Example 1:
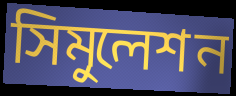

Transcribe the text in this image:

সিমুলেশন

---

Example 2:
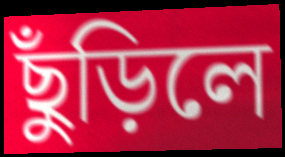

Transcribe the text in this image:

ছুঁড়িলে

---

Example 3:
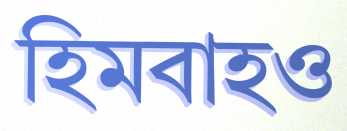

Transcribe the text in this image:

হিমবাহও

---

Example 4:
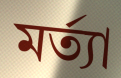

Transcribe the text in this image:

মর্ত্যা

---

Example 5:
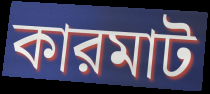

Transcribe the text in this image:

কারমাট